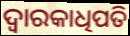
ଦ୍ୱାରକାଧିପତି